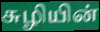
சுழியின்